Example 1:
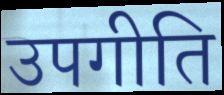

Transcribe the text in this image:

उपगीति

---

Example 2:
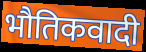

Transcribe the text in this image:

भौतिकवादी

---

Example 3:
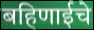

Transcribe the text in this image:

बहिणाईचे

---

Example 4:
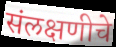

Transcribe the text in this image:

संलक्षणीचे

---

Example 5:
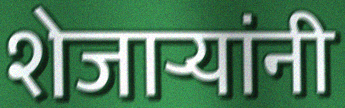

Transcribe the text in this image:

शेजाऱ्यांनी